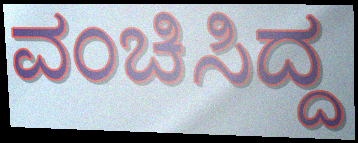
ವಂಚಿಸಿದ್ದ